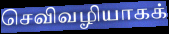
செவிவழியாகக்